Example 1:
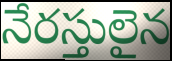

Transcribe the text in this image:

నేరస్తులైన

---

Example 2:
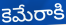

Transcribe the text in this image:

కెమేరాకి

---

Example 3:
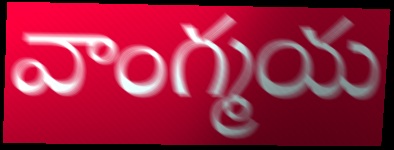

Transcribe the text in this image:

వాంగ్మయ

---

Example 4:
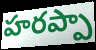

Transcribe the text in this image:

హరప్పా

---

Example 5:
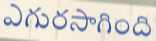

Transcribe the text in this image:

ఎగురసాగింది